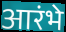
आरंभे